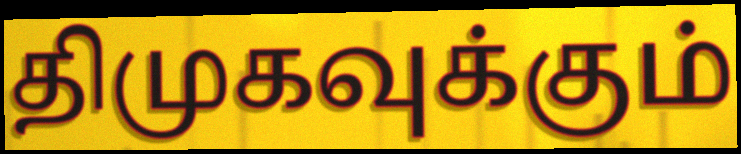
திமுகவுக்கும்